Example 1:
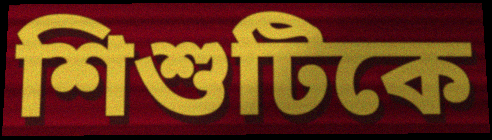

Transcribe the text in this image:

শিশুটিকে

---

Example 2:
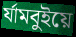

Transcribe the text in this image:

র্যামবুইয়ে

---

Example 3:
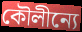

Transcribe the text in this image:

কৌলীন্যে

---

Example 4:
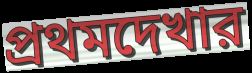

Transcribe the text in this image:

প্রথমদেখার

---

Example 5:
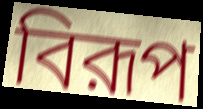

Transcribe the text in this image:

বিরূপ